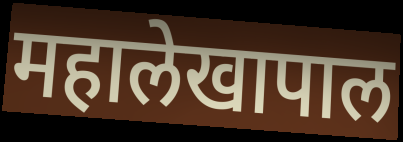
महालेखापाल